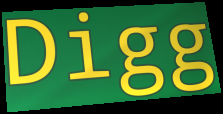
Digg